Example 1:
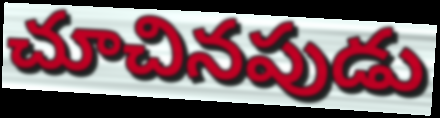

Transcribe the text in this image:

చూచినపుడు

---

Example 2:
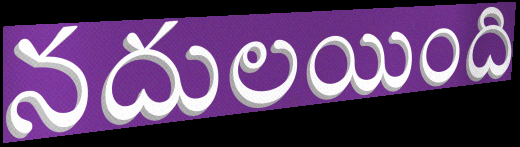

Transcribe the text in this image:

నదులయింది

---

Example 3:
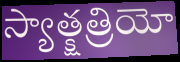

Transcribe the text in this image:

స్యాత్క్షత్రియో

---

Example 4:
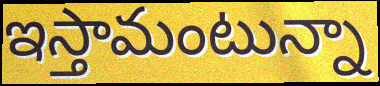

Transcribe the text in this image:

ఇస్తామంటున్నా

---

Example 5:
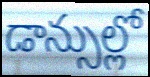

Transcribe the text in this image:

డాన్సుల్లో